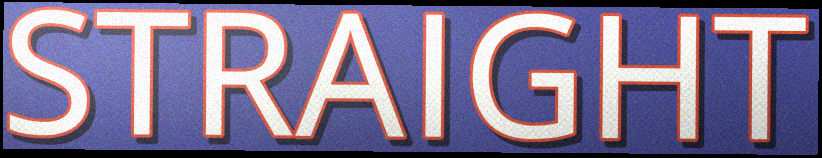
STRAIGHT